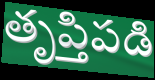
తృప్తిపడి